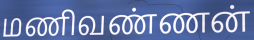
மணிவண்ணன்